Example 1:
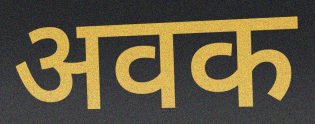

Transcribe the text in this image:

अवक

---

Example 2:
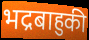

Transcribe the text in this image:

भद्रबाहुकी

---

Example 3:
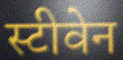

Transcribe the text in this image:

स्टीवेन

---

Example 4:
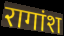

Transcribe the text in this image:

रागांश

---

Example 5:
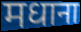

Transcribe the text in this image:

मधाना